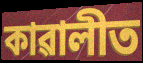
কাৱালীত